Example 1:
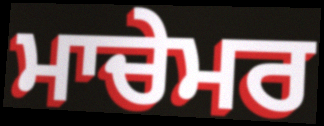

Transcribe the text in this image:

ਮਾਚੇਮਰ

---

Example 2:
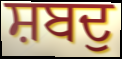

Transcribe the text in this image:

ਸ਼ਬਦੁ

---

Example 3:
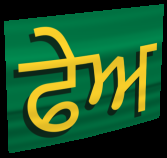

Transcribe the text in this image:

ਫੇਅ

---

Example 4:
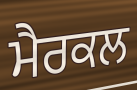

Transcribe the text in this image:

ਮੈਰਕਲ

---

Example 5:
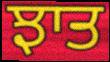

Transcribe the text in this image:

ਝਾਤ